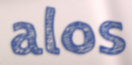
alos